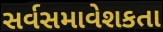
સર્વસમાવેશકતા